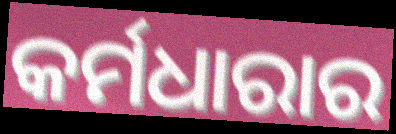
କର୍ମଧାରାର